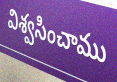
విశ్వసించాము